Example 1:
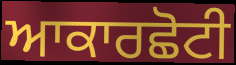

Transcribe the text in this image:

ਆਕਾਰਛੋਟੀ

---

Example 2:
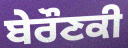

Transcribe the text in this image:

ਬੇਰੌਣਕੀ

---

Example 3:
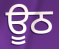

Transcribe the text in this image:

ਊਠ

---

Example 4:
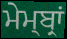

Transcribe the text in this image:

ਮੇਮ੍ਬ੍ਰਾਂ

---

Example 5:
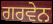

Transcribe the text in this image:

ਗਰਵੇਨ